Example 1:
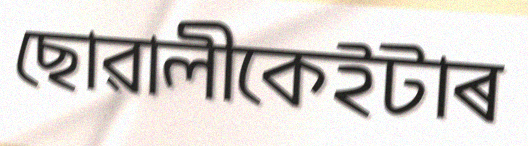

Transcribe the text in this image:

ছোৱালীকেইটাৰ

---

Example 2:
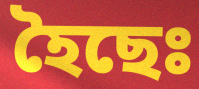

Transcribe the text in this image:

হৈছেঃ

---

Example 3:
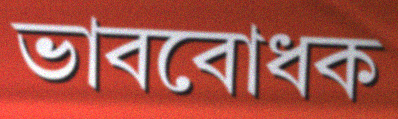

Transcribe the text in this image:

ভাববোধক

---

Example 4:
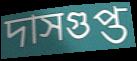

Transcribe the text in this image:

দাসগুপ্ত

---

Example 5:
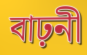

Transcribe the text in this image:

বাঢ়নী